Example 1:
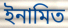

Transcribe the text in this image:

ইনামিত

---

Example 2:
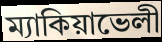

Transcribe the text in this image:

ম্যাকিয়াভেলী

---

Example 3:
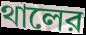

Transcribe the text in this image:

থালের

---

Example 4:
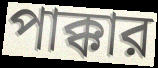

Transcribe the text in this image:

পাক্কার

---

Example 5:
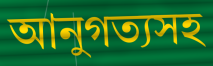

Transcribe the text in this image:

আনুগত্যসহ